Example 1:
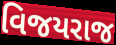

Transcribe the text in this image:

વિજયરાજ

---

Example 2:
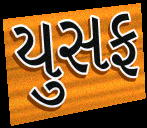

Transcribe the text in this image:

યુસફ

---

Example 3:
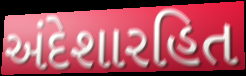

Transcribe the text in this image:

અંદેશારહિત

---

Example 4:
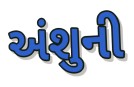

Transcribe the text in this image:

અંશુની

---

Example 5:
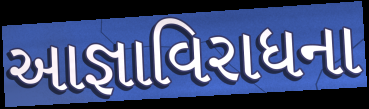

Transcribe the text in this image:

આજ્ઞાવિરાધના